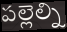
పల్లెల్ని